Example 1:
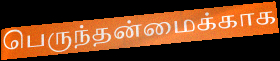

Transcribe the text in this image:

பெருந்தன்மைக்காக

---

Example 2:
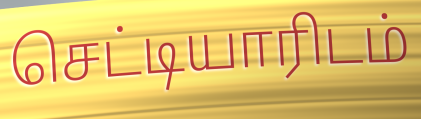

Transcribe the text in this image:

செட்டியாரிடம்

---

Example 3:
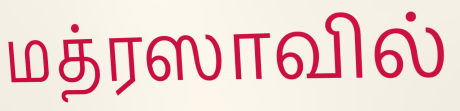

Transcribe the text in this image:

மத்ரஸாவில்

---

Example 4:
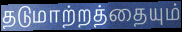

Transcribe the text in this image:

தடுமாற்றத்தையும்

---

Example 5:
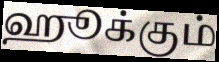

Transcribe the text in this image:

ஹூக்கும்